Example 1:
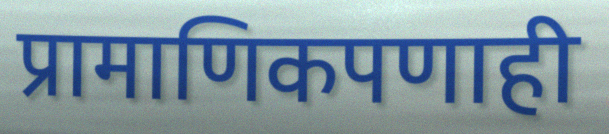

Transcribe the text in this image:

प्रामाणिकपणाही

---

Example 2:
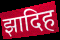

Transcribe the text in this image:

झादिह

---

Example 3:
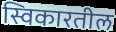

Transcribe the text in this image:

स्विकारतील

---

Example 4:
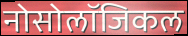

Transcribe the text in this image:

नोसोलॉजिकल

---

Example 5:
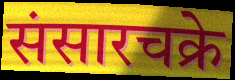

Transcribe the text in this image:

संसारचक्रे